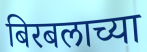
बिरबलाच्या